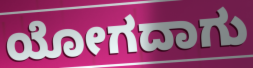
ಯೋಗದಾಗು